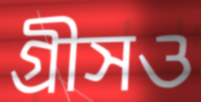
গ্রীসও